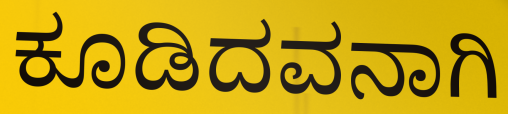
ಕೂಡಿದವನಾಗಿ